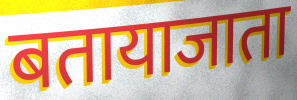
बतायाजाता